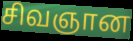
சிவஞான